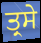
ਤ੍ਰਸੇ